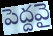
పెద్దవై